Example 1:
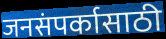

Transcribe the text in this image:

जनसंपर्कासाठी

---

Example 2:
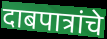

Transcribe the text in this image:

दाबपात्रांचे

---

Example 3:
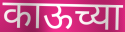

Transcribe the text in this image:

काऊच्या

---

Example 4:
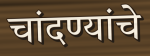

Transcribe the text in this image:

चांदण्यांचे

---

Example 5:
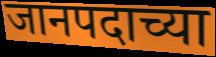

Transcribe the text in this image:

जानपदाच्या